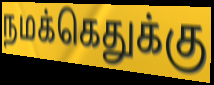
நமக்கெதுக்கு